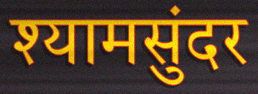
श्यामसुंदर